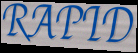
RAPID